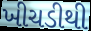
ખીચડીથી